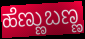
ಹೆಣ್ಣುಬಣ್ಣ